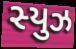
સ્યુઝ